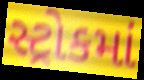
સ્ટ્રોકમાં